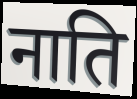
नाति